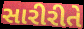
સારીરીતે